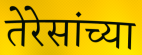
तेरेसांच्या